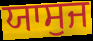
ਯਾਸੁਜ